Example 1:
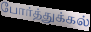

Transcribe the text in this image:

போர்த்துக்கல்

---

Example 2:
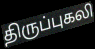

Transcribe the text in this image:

திருப்புகலி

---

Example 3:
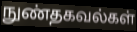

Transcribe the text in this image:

நுண்தகவல்கள்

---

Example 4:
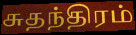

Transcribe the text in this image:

சுதந்திரம்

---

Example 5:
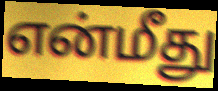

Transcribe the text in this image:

என்மீது